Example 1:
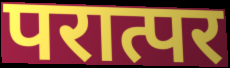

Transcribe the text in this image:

परात्पर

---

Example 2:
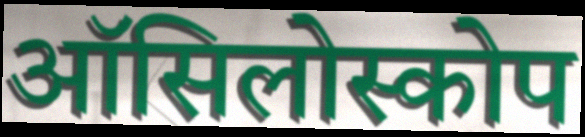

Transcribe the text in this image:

ऑसिलोस्कोप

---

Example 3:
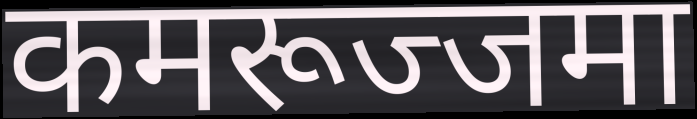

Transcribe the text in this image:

कमरूज्जमा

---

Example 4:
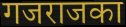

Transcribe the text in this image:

गजराजका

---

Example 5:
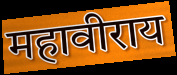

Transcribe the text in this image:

महावीराय